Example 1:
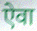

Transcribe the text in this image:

ऐवा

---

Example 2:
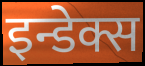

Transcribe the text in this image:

इन्डेक्स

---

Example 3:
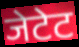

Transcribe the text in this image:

जेटेट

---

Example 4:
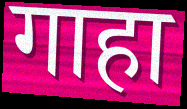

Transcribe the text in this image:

गाहा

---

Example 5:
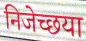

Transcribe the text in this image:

निजेच्छया